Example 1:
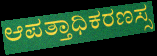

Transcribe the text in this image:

ಆಪತ್ತಾಧಿಕರಣಸ್ಸ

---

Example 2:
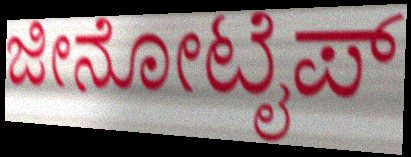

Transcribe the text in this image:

ಜೀನೋಟೈಪ್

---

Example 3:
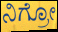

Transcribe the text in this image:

ನಿಗ್ರೋ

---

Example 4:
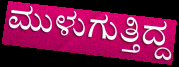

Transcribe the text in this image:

ಮುಳುಗುತ್ತಿದ್ದ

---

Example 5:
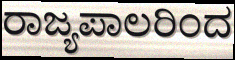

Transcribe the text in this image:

ರಾಜ್ಯಪಾಲರಿಂದ